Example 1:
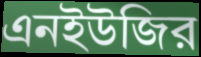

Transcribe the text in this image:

এনইউজির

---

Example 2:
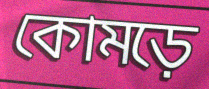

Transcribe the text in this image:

কোমড়ে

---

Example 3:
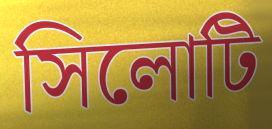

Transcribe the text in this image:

সিলোটি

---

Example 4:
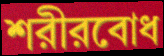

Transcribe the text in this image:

শরীরবোধ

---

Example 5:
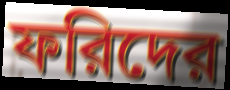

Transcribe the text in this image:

ফরিদের